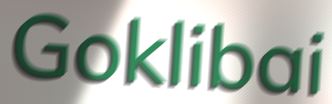
Goklibai